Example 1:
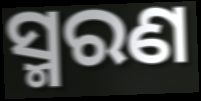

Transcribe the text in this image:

ସ୍ମରଣ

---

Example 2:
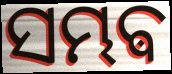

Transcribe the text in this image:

ସମ୍ଭଵ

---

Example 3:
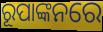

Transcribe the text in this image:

ରୂପାଙ୍କନରେ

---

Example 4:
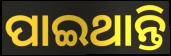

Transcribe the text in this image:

ପାଇଥାନ୍ତି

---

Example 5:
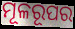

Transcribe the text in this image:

ମୂଳରୂପର